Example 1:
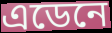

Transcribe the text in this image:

এডেনে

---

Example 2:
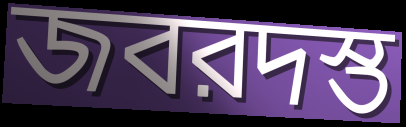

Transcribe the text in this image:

জবরদস্ত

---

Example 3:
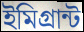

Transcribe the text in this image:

ইমিগ্রান্ট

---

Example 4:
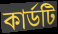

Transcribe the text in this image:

কার্ডটি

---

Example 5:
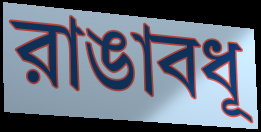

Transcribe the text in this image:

রাঙাবধূ